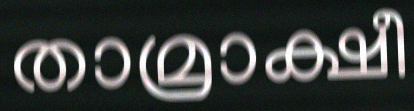
താമ്രാക്ഷീ